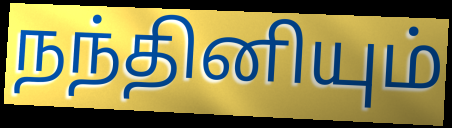
நந்தினியும்